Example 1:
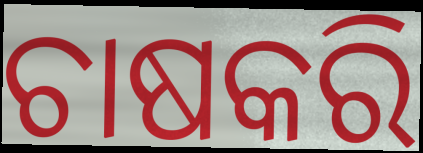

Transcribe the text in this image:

ଚାଷକରି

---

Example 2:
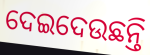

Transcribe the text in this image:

ଦେଇଦେଉଛନ୍ତି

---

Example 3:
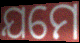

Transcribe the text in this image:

ଯମେ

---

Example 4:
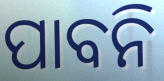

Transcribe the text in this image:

ପାବନି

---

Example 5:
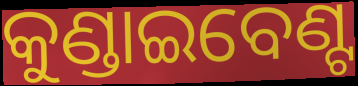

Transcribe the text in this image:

କୁଣ୍ଡାଇବେଣ୍ଟ